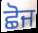
ਛੋਜ